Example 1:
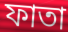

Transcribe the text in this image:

ফাতা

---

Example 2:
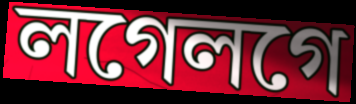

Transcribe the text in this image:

লগেলগে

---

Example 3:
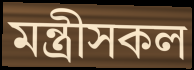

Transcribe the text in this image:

মন্ত্ৰীসকল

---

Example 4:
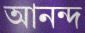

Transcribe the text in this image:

আনন্দ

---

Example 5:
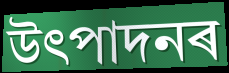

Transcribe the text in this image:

উৎপাদনৰ